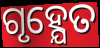
ଗୃହ୍ଯେତ